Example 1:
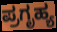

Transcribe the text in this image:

ಪ್ರಗೃಹ್ಯ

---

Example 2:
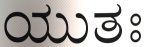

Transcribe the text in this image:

ಯುತಃ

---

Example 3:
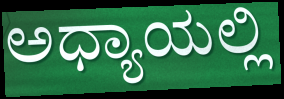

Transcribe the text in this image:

ಅಧ್ಯಾಯಲ್ಲಿ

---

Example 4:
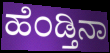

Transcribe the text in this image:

ಹೆಂಡ್ತಿನಾ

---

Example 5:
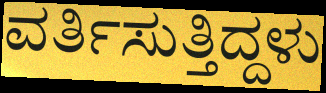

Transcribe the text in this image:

ವರ್ತಿಸುತ್ತಿದ್ದಳು